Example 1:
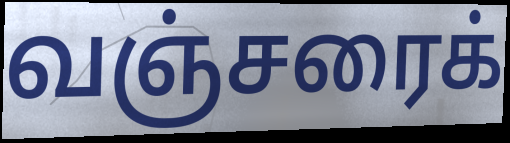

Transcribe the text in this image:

வஞ்சரைக்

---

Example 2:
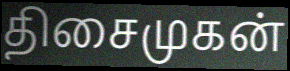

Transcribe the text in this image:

திசைமுகன்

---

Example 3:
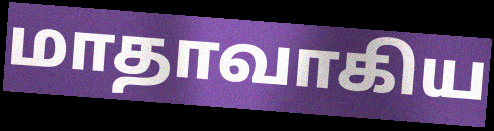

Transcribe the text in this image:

மாதாவாகிய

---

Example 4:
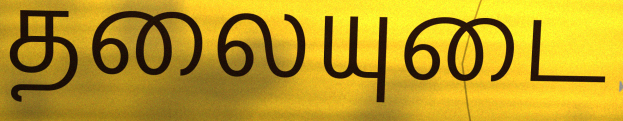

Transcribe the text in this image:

தலையுடை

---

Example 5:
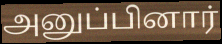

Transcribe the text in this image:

அனுப்பினார்